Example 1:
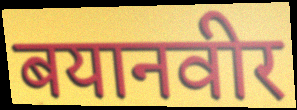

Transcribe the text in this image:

बयानवीर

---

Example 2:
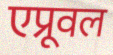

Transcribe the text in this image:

एप्रूवल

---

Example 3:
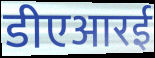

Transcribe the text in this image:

डीएआरई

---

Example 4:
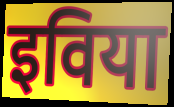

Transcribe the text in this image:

इविया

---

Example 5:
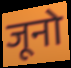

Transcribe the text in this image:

जूनो